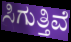
ಸಿಗುತ್ತಿವೆ